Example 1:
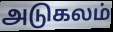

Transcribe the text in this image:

அடுகலம்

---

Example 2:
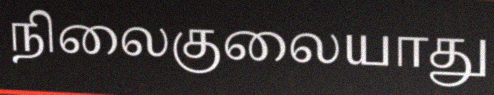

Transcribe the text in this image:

நிலைகுலையாது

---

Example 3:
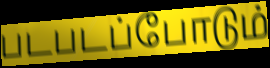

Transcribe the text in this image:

படபடப்போடும்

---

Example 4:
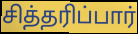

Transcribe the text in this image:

சித்தரிப்பார்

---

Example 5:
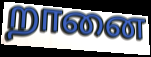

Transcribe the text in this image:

றானை